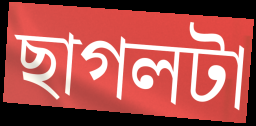
ছাগলটা